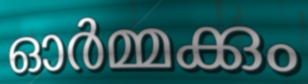
ഓർമ്മക്കും